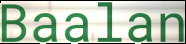
Baalan